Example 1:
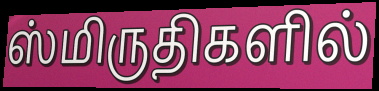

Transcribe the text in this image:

ஸ்மிருதிகளில்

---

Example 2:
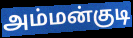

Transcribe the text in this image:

அம்மன்குடி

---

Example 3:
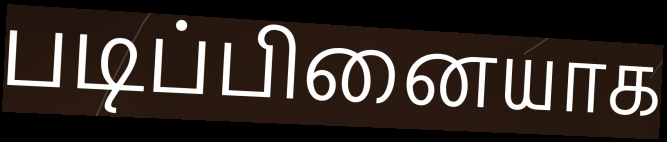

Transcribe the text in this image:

படிப்பினையாக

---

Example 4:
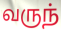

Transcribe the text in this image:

வருந்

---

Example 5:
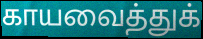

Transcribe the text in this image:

காயவைத்துக்